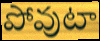
పోవుటా